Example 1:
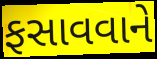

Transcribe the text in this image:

ફસાવવાને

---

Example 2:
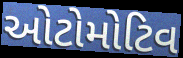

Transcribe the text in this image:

ઓટોમોટિવ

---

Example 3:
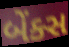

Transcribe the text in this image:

બેંક્સ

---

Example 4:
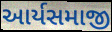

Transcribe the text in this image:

આર્યસમાજી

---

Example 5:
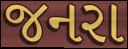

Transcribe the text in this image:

જનરા